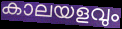
കാലയളവും